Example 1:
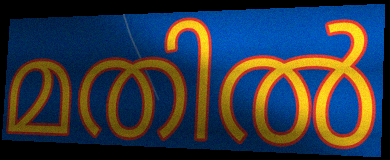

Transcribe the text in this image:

മതിൽ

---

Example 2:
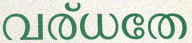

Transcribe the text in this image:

വര്ധതേ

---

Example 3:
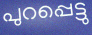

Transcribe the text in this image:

പുറപ്പെട്ടു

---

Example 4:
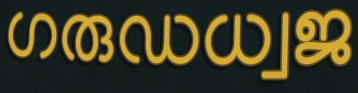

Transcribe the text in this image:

ഗരുഡധ്വജ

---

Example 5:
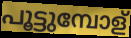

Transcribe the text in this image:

പൂട്ടുമ്പോള്